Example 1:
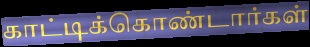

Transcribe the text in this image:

காட்டிக்கொண்டார்கள்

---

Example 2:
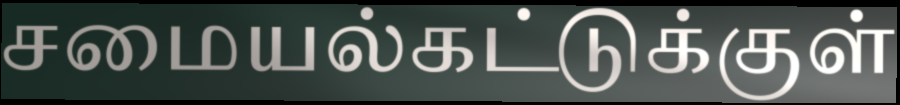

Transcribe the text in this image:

சமையல்கட்டுக்குள்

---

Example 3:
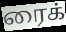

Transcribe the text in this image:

ரைக்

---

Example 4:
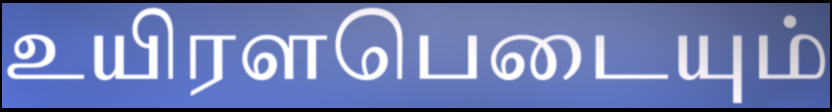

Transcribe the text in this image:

உயிரளபெடையும்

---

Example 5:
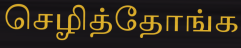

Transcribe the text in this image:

செழித்தோங்க